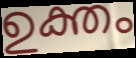
ഉക്തം